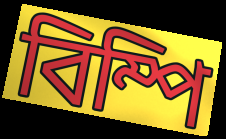
বিম্পি